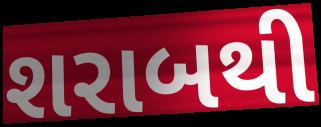
શરાબથી